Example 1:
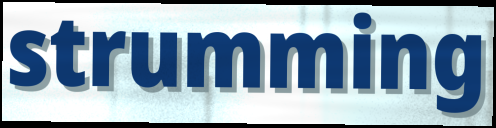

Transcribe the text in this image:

strumming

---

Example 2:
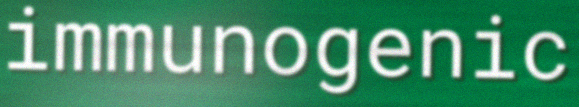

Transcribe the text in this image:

immunogenic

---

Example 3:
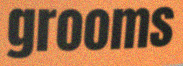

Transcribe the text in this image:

grooms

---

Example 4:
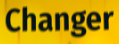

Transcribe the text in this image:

Changer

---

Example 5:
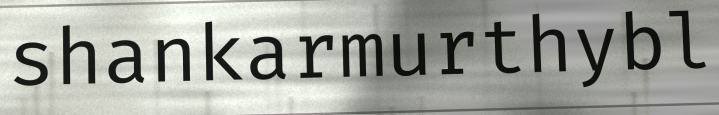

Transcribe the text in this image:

shankarmurthybl